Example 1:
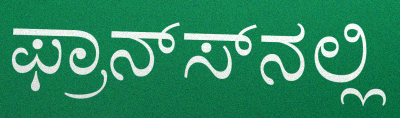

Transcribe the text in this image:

ಫ್ರಾನ್ಸ್‍ನಲ್ಲಿ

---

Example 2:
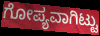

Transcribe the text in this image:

ಗೋಪ್ಯವಾಗಿಟ್ಟು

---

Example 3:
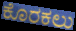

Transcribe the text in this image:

ಕೊರಕಲು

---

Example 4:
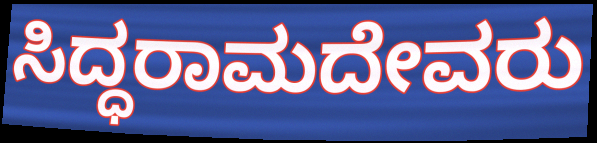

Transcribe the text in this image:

ಸಿದ್ಧರಾಮದೇವರು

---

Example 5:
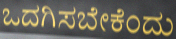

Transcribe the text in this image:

ಒದಗಿಸಬೇಕೆಂದು